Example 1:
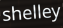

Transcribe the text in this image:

shelley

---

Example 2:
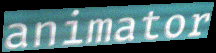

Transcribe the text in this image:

animator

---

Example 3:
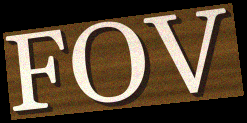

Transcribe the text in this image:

FOV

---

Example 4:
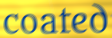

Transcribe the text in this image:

coated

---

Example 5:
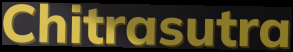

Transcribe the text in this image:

Chitrasutra